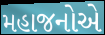
મહાજનોએ